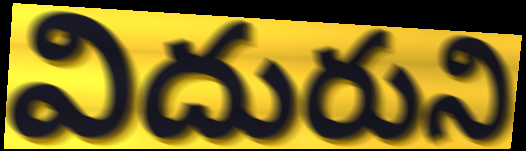
విదురుని